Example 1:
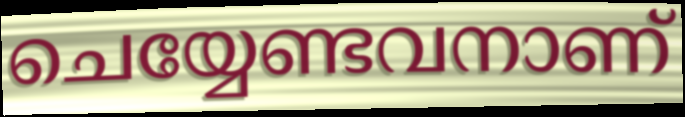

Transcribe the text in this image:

ചെയ്യേണ്ടവനാണ്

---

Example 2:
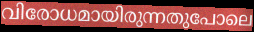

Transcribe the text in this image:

വിരോധമായിരുന്നതുപോലെ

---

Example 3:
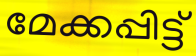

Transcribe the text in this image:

മേക്കപ്പിട്ട്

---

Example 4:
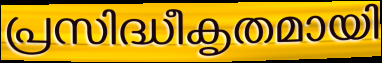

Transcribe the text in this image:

പ്രസിദ്ധീകൃതമായി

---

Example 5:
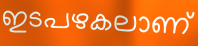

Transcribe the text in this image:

ഇടപഴകലാണ്